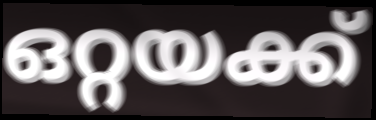
ഒറ്റയക്ക്